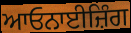
ਆਓਨਾਈਜ਼ਿੰਗ